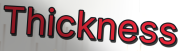
Thickness